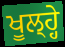
ਖੂਲ੍ਹ੍ਹੇ